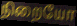
நிறையோ